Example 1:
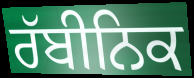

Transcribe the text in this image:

ਰੱਬੀਨਿਕ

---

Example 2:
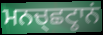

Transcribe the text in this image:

ਮਨਚ੍ਛਟ੍ਠਾਨਂ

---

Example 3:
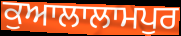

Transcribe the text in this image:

ਕੁਆਲਾਲਾਮਪੁਰ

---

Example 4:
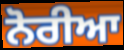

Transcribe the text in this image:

ਨੋਰੀਆ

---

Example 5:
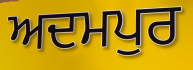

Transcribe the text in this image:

ਅਦਮਪੁਰ